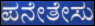
ಪನೇತೇಸು